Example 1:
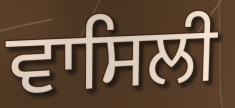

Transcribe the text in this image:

ਵਾਸਿਲੀ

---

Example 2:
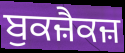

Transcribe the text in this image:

ਬੁਕਜ਼ੈਕਜ਼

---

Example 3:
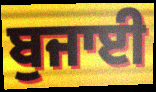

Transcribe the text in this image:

ਬੁਜਾਈ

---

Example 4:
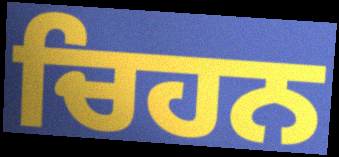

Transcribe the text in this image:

ਚਿਹਨ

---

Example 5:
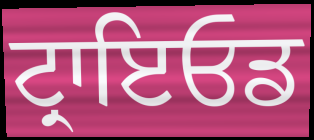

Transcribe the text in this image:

ਟ੍ਰਾਇਓਡ